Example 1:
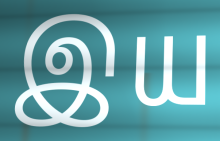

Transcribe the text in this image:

இய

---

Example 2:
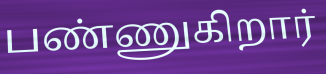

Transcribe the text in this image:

பண்ணுகிறார்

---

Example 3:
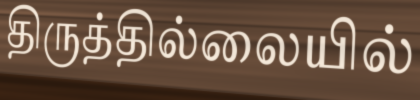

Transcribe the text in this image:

திருத்தில்லையில்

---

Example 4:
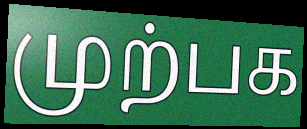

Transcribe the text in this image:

முற்பக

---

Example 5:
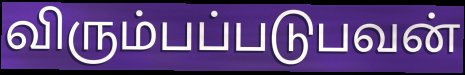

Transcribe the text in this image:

விரும்பப்படுபவன்